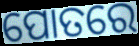
ପୋତରେ